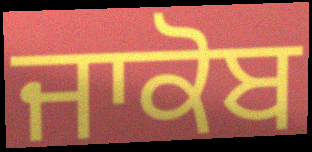
ਜਾਕੋਬ